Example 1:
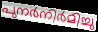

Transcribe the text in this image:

പുനർനിർമിച്ചു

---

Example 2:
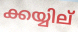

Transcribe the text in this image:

ക്കയ്യില്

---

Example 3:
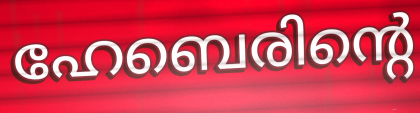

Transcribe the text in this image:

ഹേബെരിന്റെ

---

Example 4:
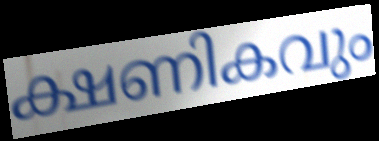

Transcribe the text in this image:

ക്ഷണികവും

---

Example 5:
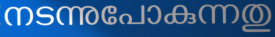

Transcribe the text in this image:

നടന്നുപോകുന്നതു